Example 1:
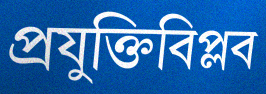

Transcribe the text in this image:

প্রযুক্তিবিপ্লব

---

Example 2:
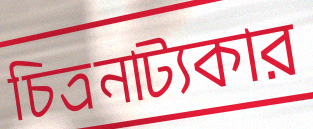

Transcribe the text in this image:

চিত্রনাট্যকার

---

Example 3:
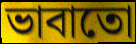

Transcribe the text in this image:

ভাবাতো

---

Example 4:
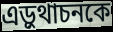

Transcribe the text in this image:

এড়ুথাচনকে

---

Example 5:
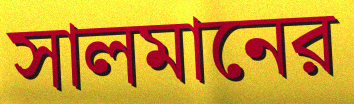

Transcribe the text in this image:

সালমানের